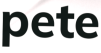
pete